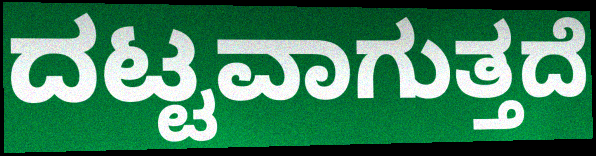
ದಟ್ಟವಾಗುತ್ತದೆ